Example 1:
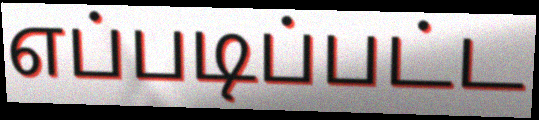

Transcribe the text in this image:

எப்படிப்பட்ட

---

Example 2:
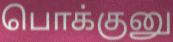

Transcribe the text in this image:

பொக்குனு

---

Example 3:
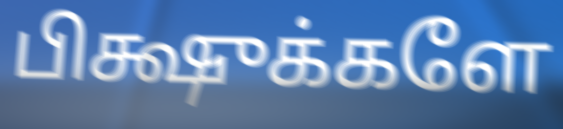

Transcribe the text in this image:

பிக்ஷுக்களே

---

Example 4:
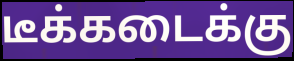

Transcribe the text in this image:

டீக்கடைக்கு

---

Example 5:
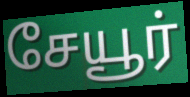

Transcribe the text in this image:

சேயூர்